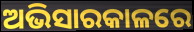
ଅଭିସାରକାଳରେ